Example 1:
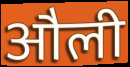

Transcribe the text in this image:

औली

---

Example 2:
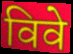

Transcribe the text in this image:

विवे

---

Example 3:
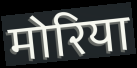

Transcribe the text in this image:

मोरिया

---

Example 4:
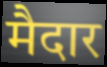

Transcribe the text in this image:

मैदार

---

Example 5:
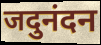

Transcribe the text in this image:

जदुनंदन